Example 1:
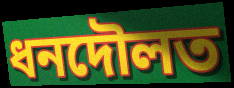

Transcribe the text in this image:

ধনদৌলত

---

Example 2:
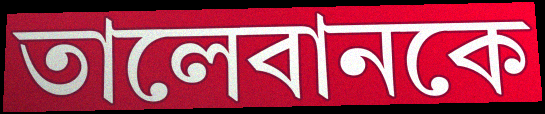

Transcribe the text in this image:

তালেবানকে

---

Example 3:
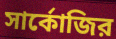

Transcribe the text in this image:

সার্কোজির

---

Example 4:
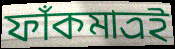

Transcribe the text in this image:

ফাঁকমাত্রই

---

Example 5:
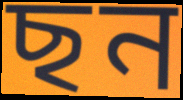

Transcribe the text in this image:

ছন